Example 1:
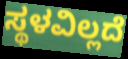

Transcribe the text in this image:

ಸ್ಥಳವಿಲ್ಲದೆ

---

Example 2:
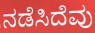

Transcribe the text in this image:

ನಡೆಸಿದೆವು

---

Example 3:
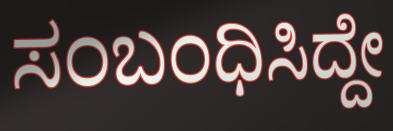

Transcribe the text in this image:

ಸಂಬಂಧಿಸಿದ್ದೇ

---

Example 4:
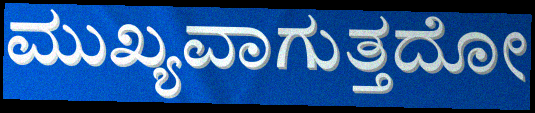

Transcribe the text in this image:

ಮುಖ್ಯವಾಗುತ್ತದೋ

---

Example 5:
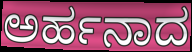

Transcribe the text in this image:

ಅರ್ಹನಾದ